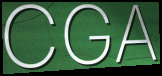
CGA